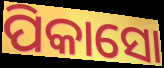
ପିକାସୋ